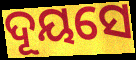
ଦୂୟସେ